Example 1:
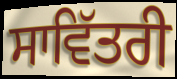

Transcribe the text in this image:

ਸਾਵਿੱਤਰੀ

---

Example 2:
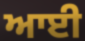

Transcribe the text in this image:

ਆਈ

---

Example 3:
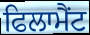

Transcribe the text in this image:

ਫਿਲਾਮੈਂਟ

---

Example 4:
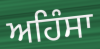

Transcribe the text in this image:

ਅਹਿੰਸਾ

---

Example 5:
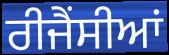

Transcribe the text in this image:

ਰੀਜੈਂਸੀਆਂ